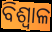
ବିଶ୍ୱାଳ